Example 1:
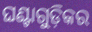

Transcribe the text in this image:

ଘଣ୍ଟାଗୁଡ଼ିକର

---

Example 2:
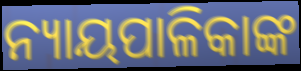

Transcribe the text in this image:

ନ୍ୟାୟପାଳିକାଙ୍କ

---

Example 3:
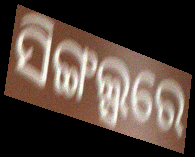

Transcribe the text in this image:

ସିଙ୍ଗଲ୍ସରେ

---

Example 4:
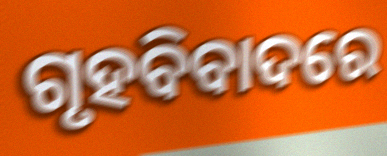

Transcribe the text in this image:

ଗୃହବିବାଦରେ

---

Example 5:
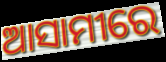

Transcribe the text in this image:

ଆସାମୀରେ